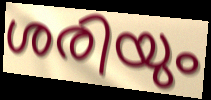
ശരിയും